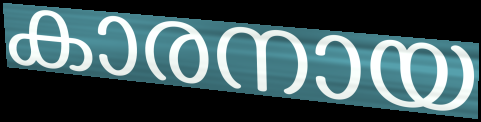
കാരനായ